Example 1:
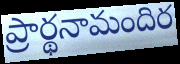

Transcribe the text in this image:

ప్రార్థనామందిర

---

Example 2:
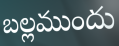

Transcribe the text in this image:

బల్లముందు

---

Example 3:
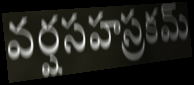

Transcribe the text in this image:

వర్షసహస్రకమ్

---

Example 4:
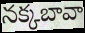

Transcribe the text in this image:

నక్కబావా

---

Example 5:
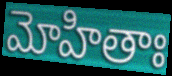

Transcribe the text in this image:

మోహితాః